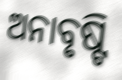
ଅନାବୃଷ୍ଟି